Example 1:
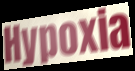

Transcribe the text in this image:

Hypoxia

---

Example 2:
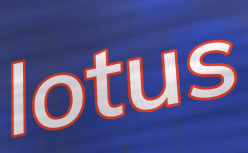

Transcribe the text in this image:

lotus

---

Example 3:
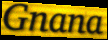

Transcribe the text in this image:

Gnana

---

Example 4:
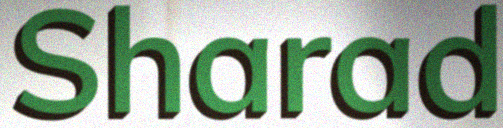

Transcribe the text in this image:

Sharad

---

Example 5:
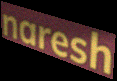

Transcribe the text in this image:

naresh